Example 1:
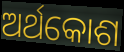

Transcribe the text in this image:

ଅର୍ଥକୋଶ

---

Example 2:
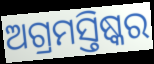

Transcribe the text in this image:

ଅଗ୍ରମସ୍ତିଷ୍କର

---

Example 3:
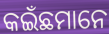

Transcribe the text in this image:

କଇଁଛମାନେ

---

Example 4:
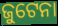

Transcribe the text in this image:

ଜୁଟେନା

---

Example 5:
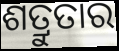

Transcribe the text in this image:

ଶତ୍ରୁତାର